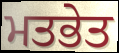
ਮਤਭੇਤ